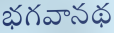
భగవానథ